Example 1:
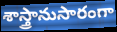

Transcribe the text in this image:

శాస్త్రానుసారంగా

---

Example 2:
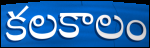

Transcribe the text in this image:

కలకాలం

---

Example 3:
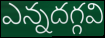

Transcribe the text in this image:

ఎన్నదగ్గవి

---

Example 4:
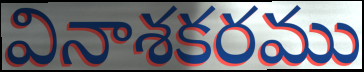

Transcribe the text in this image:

వినాశకరము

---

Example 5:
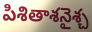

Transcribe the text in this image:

పిశితాశనైశ్చ